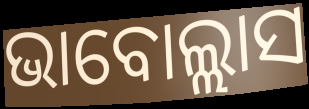
ଭାବୋଲ୍ଲାସ